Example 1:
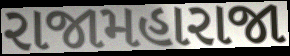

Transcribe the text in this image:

રાજામહારાજા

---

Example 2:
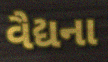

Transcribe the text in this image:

વૈદ્યના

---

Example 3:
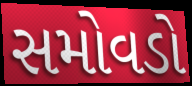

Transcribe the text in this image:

સમોવડો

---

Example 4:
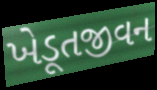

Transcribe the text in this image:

ખેડૂતજીવન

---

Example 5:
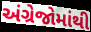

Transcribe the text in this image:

અંગ્રેજોમાંથી